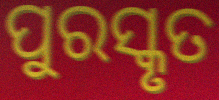
ପୁରସ୍କୃତ